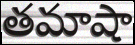
తమాషా